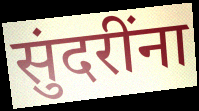
सुंदरींना